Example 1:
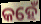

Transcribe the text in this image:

କହେଁ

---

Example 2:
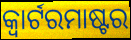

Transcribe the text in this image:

କ୍ୱାର୍ଟରମାଷ୍ଟର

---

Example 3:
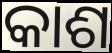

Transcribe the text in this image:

କାଶ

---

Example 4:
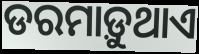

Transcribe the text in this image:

ଡରମାଡ଼ୁଥାଏ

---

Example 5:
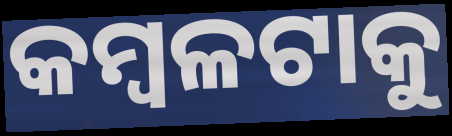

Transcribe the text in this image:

କମ୍ବଳଟାକୁ